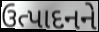
ઉત્પાદનને